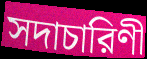
সদাচারিণী